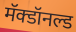
मॅक्डॉनल्ड